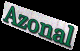
Azonal